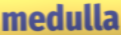
medulla